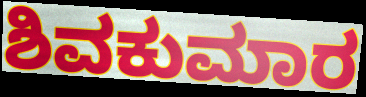
ಶಿವಕುಮಾರ